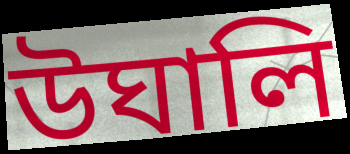
উঘালি